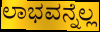
ಲಾಭವನ್ನೆಲ್ಲ